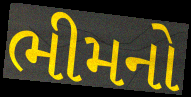
ભીમનો